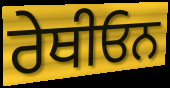
ਰੇਥੀਓਨ